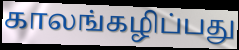
காலங்கழிப்பது